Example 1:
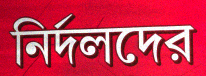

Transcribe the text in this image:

নির্দলদের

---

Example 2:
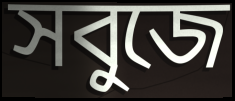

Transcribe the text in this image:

সবুজে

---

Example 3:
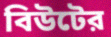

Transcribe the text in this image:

বিউটের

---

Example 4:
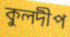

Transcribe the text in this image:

কুলদীপ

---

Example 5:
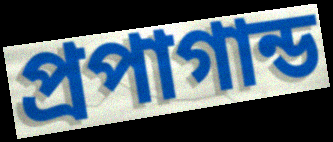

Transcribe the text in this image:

প্রপাগান্ড